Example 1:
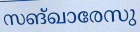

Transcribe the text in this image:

സങ്ഖാരേസു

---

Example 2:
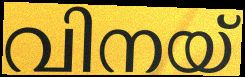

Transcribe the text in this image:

വിനയ്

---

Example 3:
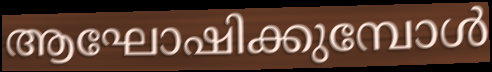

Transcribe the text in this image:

ആഘോഷിക്കുമ്പോൾ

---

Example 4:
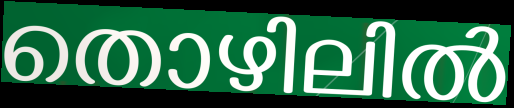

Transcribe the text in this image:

തൊഴിലിൽ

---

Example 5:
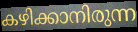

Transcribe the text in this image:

കഴിക്കാനിരുന്ന